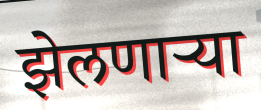
झेलणाऱ्या